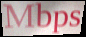
Mbps